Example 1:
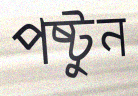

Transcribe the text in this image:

পষ্টুন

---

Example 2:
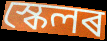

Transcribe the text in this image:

স্কেলৰ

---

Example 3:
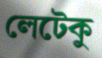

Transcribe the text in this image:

লেটেকু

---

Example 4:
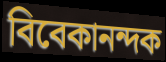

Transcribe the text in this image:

বিবেকানন্দক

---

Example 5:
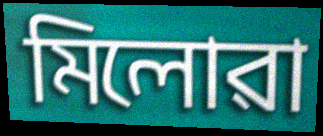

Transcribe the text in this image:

মিলোৱা